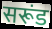
सरूंड